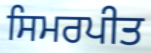
ਸਿਮਰਪੀਤ